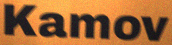
Kamov